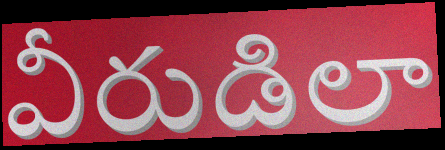
వీరుడిలా